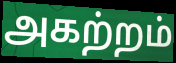
அகற்றம்